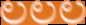
ಲಲಲ